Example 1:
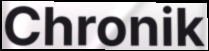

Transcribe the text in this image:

Chronik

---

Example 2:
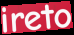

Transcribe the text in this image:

ireto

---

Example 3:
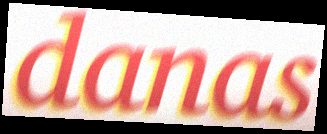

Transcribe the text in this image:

danas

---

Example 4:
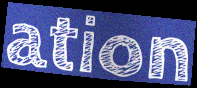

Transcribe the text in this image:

ation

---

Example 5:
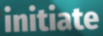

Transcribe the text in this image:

initiate